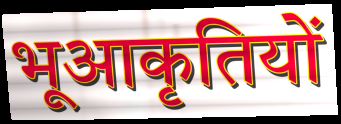
भूआकृतियों